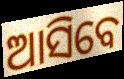
ଆସିବେ